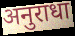
अनुराधा